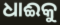
ଧାଈକୁ